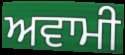
ਅਵਾਮੀ